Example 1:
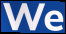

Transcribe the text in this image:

We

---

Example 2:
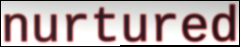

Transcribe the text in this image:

nurtured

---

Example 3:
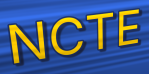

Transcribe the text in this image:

NCTE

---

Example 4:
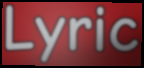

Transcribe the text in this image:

Lyric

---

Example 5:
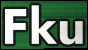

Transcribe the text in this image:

Fku